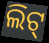
ଲିଟ୍